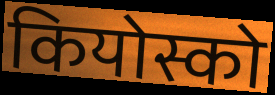
कियोस्को